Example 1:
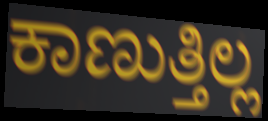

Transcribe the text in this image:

ಕಾಣುತ್ತಿಲ್ಲ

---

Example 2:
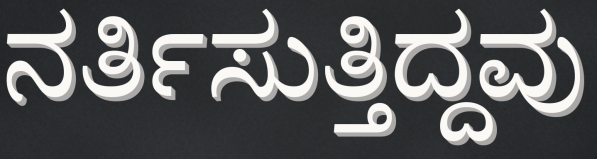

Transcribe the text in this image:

ನರ್ತಿಸುತ್ತಿದ್ದವು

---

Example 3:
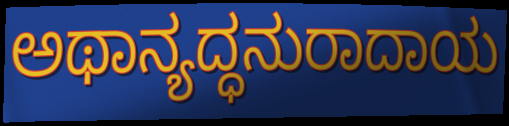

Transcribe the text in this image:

ಅಥಾನ್ಯದ್ಧನುರಾದಾಯ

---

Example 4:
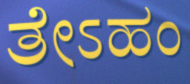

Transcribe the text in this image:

ತೇಽಹಂ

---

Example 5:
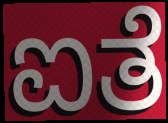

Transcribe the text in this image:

ಐತೆ